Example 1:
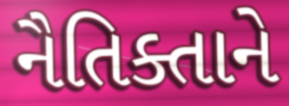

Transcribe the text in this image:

નૈતિક્તાને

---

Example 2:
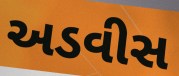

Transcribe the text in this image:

અડવીસ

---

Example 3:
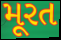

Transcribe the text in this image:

મૂરત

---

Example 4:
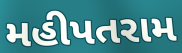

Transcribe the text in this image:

મહીપતરામ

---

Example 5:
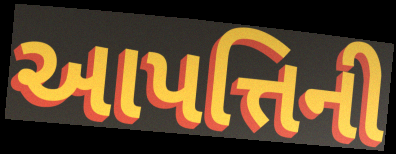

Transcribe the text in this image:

આપત્તિની